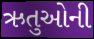
ઋતુઓની